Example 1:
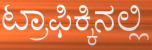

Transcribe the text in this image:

ಟ್ರಾಫಿಕ್ಕಿನಲ್ಲಿ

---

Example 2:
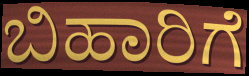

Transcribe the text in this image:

ಬಿಹಾರಿಗೆ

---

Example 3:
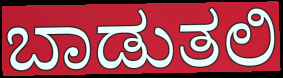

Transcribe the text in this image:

ಬಾಡುತಲಿ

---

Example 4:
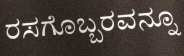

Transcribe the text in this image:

ರಸಗೊಬ್ಬರವನ್ನೂ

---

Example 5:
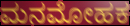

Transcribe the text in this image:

ಮನಮೋಹಕ